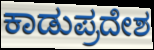
ಕಾಡುಪ್ರದೇಶ